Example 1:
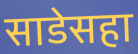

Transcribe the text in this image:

साडेसहा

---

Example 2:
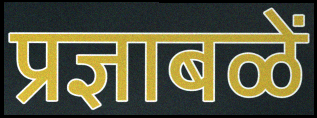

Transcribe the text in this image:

प्रज्ञाबळें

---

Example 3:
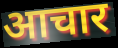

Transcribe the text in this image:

आचार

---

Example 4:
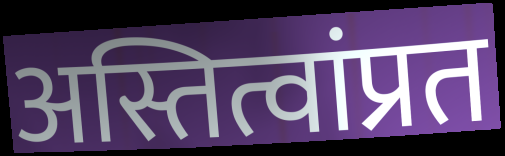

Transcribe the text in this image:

अस्तित्वांप्रत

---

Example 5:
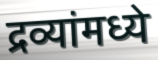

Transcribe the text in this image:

द्रव्यांमध्ये